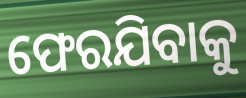
ଫେରଯିବାକୁ